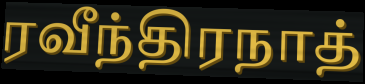
ரவீந்திரநாத்